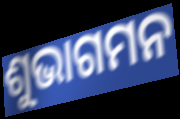
ଶୁଭାଗମନ